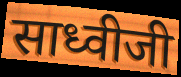
साध्वीजी